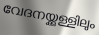
വേദനയ്ക്കുള്ളിലും